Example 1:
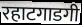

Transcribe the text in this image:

रहाटगाडगी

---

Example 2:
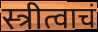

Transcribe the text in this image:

स्त्रीत्वाचं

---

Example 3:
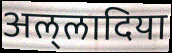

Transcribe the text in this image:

अल्लादिया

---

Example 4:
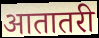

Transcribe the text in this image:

आतातरी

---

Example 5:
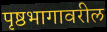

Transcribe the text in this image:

पृष्ठभागावरील